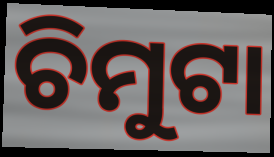
ଚିମୁଟା